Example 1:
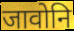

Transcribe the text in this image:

जावोनि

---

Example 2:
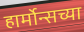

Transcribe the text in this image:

हार्मोन्सच्या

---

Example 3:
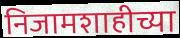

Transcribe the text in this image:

निजामशाहीच्या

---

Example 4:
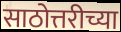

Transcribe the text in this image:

साठोत्तरीच्या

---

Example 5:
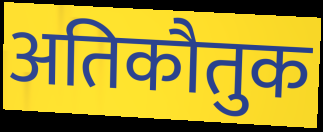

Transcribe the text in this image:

अतिकौतुक